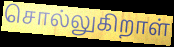
சொல்லுகிறாள்